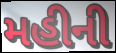
મહીની